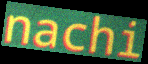
nachi